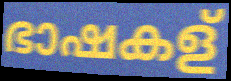
ഭാഷകള്